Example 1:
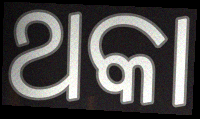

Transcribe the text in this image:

ଥକା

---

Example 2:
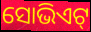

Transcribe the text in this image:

ସୋଭିଏଟ୍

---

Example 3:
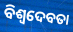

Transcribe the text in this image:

ବିଶ୍ୱଦେବତା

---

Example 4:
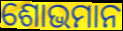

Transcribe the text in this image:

ଶୋଭମାନ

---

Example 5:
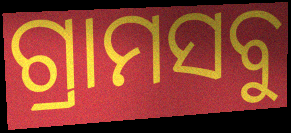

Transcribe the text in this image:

ଗ୍ରାମସବୁ